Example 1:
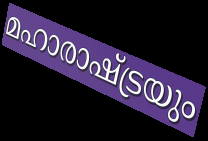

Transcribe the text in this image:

മഹാരാഷ്ട്രയും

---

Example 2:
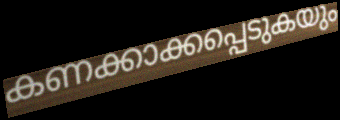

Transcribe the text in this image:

കണക്കാക്കപ്പെടുകയും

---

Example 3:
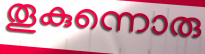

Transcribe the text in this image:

തൂകുന്നൊരു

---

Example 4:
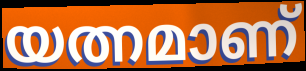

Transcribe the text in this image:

യത്നമാണ്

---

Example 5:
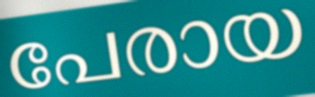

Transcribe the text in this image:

പേരായ